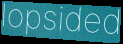
lopsided